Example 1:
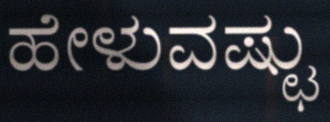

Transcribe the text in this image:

ಹೇಳುವಷ್ಟು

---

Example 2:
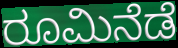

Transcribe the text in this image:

ರೂಮಿನೆಡೆ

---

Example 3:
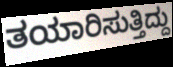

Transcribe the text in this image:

ತಯಾರಿಸುತ್ತಿದ್ದು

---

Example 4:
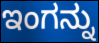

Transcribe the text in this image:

ಇಂಗನ್ನು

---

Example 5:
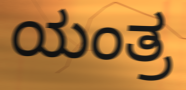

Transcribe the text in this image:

ಯಂತ್ರ